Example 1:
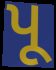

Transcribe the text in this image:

પૂ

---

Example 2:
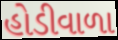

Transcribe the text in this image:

હોડીવાળા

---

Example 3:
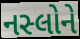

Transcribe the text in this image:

નસ્લોને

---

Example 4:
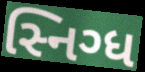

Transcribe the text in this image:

સ્નિગ્ધ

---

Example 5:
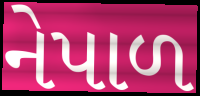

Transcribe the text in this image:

નેપાળ